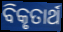
ବିକୃତାର୍ଥ